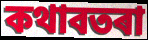
কথাবতৰা